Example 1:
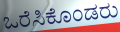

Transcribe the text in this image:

ಒರೆಸಿಕೊಂಡರು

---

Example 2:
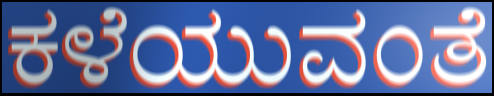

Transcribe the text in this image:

ಕಳೆಯುವಂತೆ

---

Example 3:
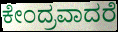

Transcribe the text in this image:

ಕೇಂದ್ರವಾದರೆ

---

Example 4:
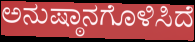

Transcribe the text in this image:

ಅನುಷ್ಠಾನಗೊಳಿಸಿದೆ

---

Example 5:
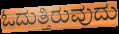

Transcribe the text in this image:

ಓದುತ್ತಿರುವುದು